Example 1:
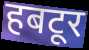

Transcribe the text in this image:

हबटूर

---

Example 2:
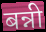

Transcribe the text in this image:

बन्नी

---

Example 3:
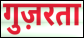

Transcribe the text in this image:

गुज़रता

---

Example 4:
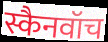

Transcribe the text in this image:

स्कैनवॉच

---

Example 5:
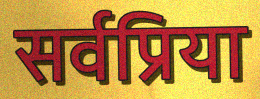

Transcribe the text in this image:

सर्वप्रिया